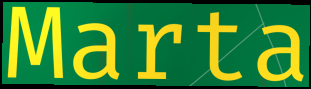
Marta